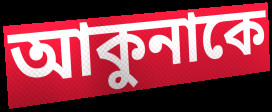
আকুনাকে